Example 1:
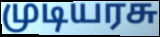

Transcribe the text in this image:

முடியரசு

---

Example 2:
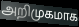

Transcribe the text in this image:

அறிமுகமாக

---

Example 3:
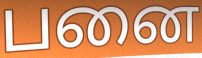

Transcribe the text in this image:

பனை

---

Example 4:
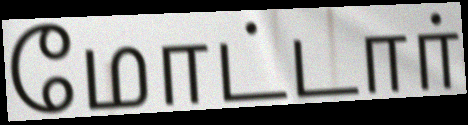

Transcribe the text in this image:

மோட்டார்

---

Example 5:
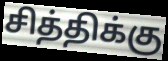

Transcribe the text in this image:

சித்திக்கு